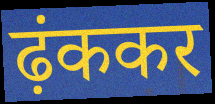
ढ़ंककर